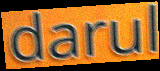
darul